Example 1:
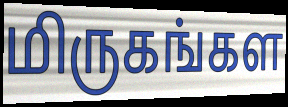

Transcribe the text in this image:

மிருகங்கள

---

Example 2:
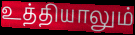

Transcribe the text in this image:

உத்தியாலும்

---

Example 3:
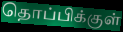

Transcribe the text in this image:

தொப்பிக்குள்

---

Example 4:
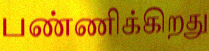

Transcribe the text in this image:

பண்ணிக்கிறது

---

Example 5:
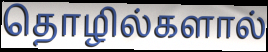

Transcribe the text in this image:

தொழில்களால்